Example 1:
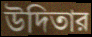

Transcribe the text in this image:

উদিতার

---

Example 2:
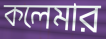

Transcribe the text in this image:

কলেমার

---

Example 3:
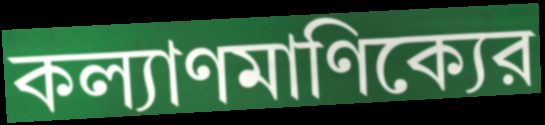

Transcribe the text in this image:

কল্যাণমাণিক্যের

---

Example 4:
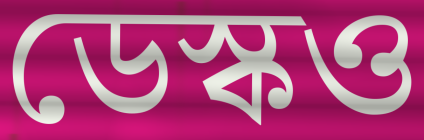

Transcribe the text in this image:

ডেস্কও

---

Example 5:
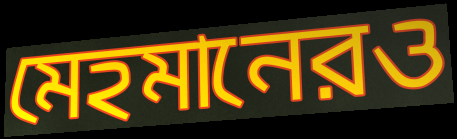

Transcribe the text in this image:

মেহমানেরও